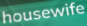
housewife